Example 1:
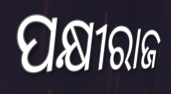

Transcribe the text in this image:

ପକ୍ଷୀରାଜ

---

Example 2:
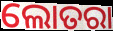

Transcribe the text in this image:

ଲୋତରା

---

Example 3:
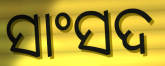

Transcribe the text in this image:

ସାଂସଦ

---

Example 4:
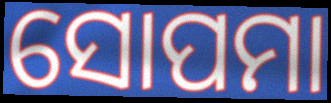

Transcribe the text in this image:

ସୋପମା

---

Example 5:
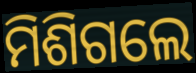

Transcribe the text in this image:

ମିଶିଗଲେ